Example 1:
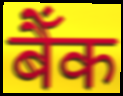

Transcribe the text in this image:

बैँक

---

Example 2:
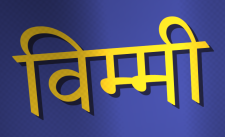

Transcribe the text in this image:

विम्मी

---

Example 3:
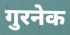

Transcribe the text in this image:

गुरनेक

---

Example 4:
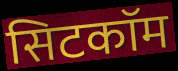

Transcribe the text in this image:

सिटकॉम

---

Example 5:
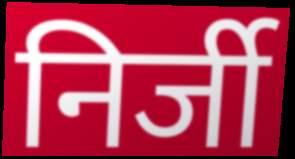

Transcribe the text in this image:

निर्जी